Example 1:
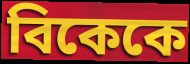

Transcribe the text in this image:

বিকেকে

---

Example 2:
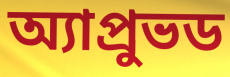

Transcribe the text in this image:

অ্যাপ্রুভড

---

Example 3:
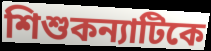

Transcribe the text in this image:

শিশুকন্যাটিকে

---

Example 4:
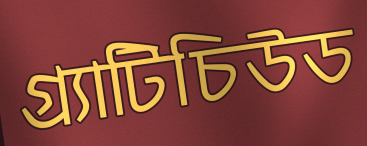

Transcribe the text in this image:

গ্র্যাটিচিউড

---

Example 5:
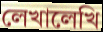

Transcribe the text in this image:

লেখালেখি